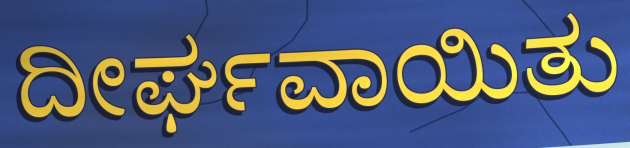
ದೀರ್ಘವಾಯಿತು